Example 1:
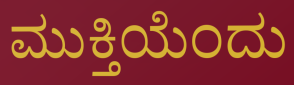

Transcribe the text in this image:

ಮುಕ್ತಿಯೆಂದು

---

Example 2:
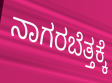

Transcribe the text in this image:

ನಾಗರಬೆತ್ತಕ್ಕೆ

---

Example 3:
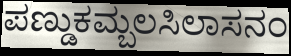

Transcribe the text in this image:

ಪಣ್ಡುಕಮ್ಬಲಸಿಲಾಸನಂ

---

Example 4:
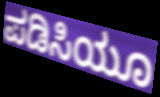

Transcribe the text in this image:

ಪಡಿಸಿಯೂ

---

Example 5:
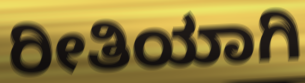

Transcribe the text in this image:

ರೀತಿಯಾಗಿ